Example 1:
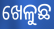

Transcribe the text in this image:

ଖେଳୁଛ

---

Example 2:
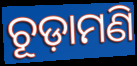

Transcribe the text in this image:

ଚୂଡ଼ାମଣି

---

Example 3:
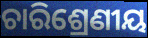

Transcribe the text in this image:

ଚାରିଶ୍ରେଣୀୟ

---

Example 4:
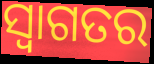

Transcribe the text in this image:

ସ୍ଵାଗତର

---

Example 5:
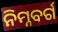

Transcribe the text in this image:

ନିମ୍ନବର୍ଗ